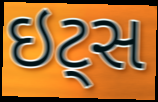
ઇટ્સ